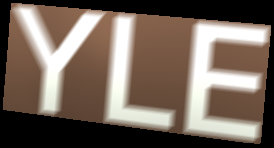
YLE